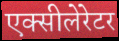
एक्सीलेरेटर